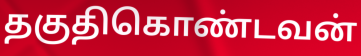
தகுதிகொண்டவன்